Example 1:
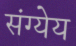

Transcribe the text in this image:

संग्येय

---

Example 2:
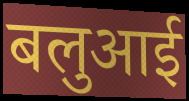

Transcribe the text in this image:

बलुआई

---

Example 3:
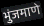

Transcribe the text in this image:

भुंजमाणे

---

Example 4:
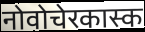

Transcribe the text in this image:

नोवोचेरकास्क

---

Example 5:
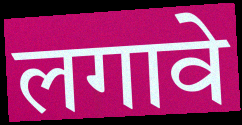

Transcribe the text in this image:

लगावे